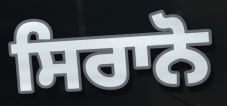
ਸਿਰਾਨੋ